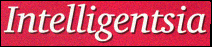
Intelligentsia